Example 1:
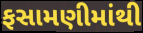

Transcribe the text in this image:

ફસામણીમાંથી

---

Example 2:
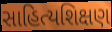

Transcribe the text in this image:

સાહિત્યશિક્ષણ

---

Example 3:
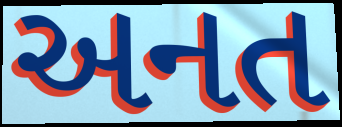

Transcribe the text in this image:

અનત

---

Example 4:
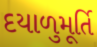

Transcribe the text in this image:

દયાળુમૂર્તિ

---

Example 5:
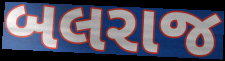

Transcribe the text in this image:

બલરાજ